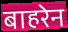
बाहरेन